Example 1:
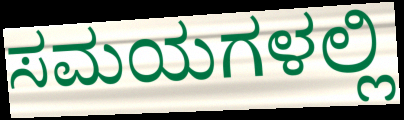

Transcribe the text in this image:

ಸಮಯಗಳಲ್ಲಿ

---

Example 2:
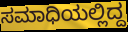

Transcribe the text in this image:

ಸಮಾಧಿಯಲ್ಲಿದ್ದ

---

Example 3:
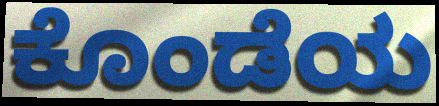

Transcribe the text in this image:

ಕೊಂಡೆಯ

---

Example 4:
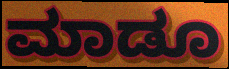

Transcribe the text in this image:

ಮಾಡೂ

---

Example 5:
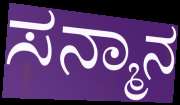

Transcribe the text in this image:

ಸನ್ಮಾನ